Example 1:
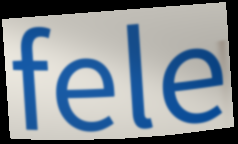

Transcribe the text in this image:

fele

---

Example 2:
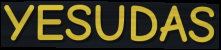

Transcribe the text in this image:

YESUDAS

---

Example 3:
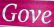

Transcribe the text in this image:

Gove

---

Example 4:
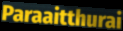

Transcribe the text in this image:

Paraaitthurai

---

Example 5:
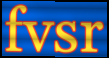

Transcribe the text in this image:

fvsr